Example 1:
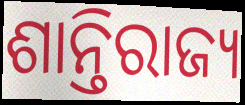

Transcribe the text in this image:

ଶାନ୍ତିରାଜ୍ୟ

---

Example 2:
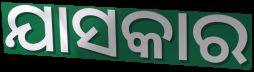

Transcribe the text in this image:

ଯାସକାର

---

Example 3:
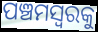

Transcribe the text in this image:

ପଞ୍ଚମସ୍ୱରକୁ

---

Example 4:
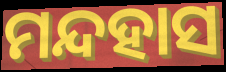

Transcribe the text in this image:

ମନ୍ଦହାସ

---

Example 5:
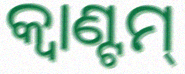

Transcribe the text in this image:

କ୍ୱାଣ୍ଟମ୍